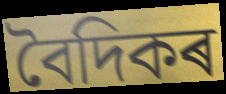
বৈদিকৰ